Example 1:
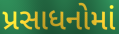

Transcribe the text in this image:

પ્રસાધનોમાં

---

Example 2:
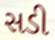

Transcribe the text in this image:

સડી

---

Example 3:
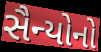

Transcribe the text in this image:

સૈન્યોનો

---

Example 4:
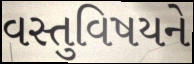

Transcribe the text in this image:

વસ્તુવિષયને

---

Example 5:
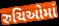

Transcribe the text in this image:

રુચિઓમાં